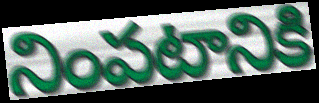
నింపటానికి